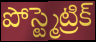
పోస్ట్మెట్రిక్